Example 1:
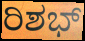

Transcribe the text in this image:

ರಿಶಭ್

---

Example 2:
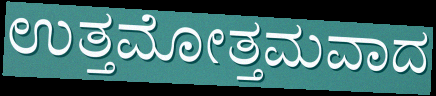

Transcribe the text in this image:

ಉತ್ತಮೋತ್ತಮವಾದ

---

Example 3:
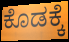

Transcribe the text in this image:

ಕೊಡಕ್ಕೆ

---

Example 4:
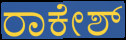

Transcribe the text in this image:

ರಾಕೇಶ್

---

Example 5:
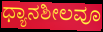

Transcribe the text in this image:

ಧ್ಯಾನಶೀಲವೂ